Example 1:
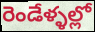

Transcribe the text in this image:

రెండేళ్ళల్లో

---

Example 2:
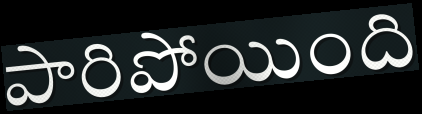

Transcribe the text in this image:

పారిపోయింది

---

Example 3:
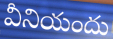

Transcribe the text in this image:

వీనియందు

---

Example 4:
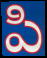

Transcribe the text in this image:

పి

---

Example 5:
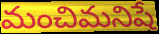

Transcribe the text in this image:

మంచిమనిషే